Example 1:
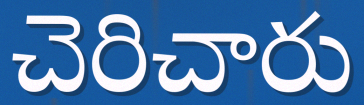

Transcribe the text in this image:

చెరిచారు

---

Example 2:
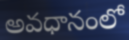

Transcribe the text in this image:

అవధానంలో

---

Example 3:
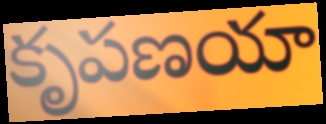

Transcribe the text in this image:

కృపణయా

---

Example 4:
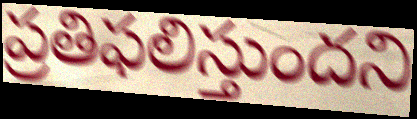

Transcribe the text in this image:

ప్రతిఫలిస్తుందని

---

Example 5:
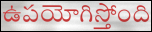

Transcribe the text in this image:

ఉపయోగిస్తోంది